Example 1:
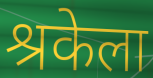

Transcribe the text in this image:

श्रकेला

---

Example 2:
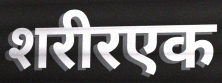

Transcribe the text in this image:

शरीरएक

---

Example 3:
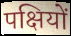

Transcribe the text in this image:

पक्षियों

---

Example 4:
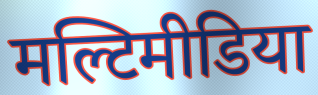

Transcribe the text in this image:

मल्टिमीडिया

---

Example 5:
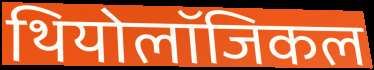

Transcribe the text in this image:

थियोलॉजिकल